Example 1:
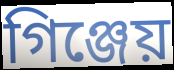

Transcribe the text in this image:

গিঞ্জেয়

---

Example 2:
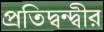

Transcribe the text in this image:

প্রতিদ্বন্দ্বীর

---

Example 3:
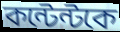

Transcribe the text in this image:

কন্টেন্টকে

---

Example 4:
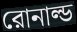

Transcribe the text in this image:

রোনাল্ড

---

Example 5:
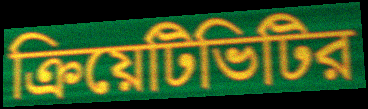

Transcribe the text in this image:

ক্রিয়েটিভিটির